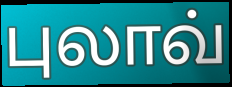
புலாவ்